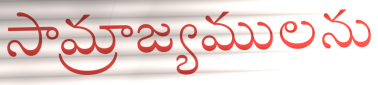
సామ్రాజ్యములను